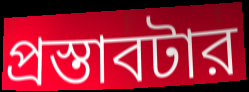
প্রস্তাবটার